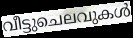
വീട്ടുചെലവുകൾ